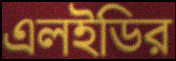
এলইডির